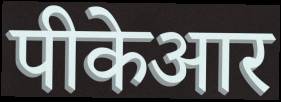
पीकेआर